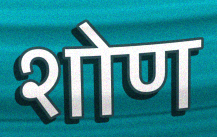
शोण